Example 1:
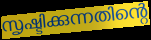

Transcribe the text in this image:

സൃഷ്ടിക്കുന്നതിന്റെ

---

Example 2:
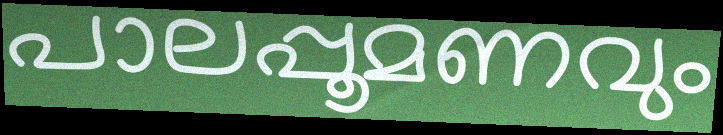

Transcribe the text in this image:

പാലപ്പൂമണവും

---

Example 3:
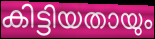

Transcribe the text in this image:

കിട്ടിയതായും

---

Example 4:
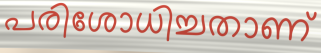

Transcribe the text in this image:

പരിശോധിച്ചതാണ്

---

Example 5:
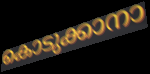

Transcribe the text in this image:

കൊടുക്കാനാ